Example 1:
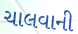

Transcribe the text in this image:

ચાલવાની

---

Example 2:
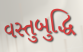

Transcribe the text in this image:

વસ્તુબુદ્ધિ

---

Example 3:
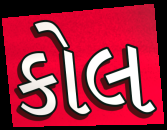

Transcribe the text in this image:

કોલ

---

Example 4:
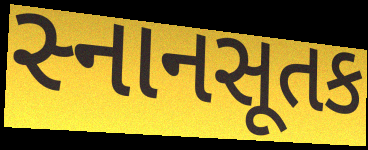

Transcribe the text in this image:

સ્નાનસૂતક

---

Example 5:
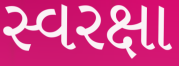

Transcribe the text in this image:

સ્વરક્ષા